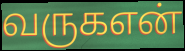
வருகஎன்